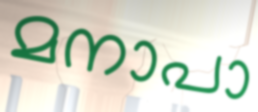
മനാപാ